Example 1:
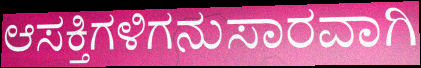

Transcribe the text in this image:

ಆಸಕ್ತಿಗಳಿಗನುಸಾರವಾಗಿ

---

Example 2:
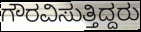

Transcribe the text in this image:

ಗೌರವಿಸುತ್ತಿದ್ದರು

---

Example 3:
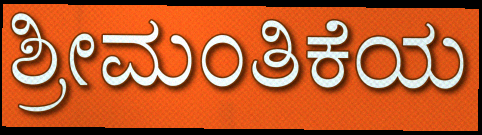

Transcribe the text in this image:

ಶ್ರೀಮಂತಿಕೆಯ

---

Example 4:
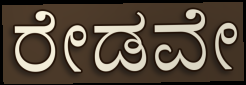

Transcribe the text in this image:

ರೇಡವೇ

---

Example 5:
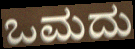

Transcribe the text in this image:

ಒಮದು